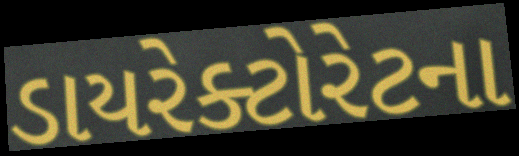
ડાયરેક્ટોરેટના